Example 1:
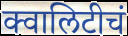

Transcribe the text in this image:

क्वालिटीचं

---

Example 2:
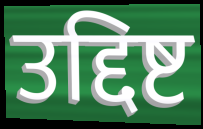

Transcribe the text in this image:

उद्दिष्ट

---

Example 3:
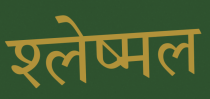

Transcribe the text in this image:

श्लेष्मल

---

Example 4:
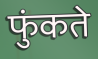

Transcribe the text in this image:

फुंकते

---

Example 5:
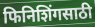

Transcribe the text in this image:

फिनिशिंगसाठी